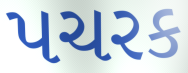
પચરક